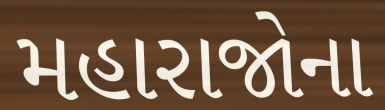
મહારાજોના